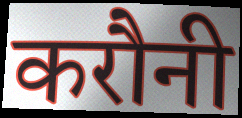
करौनी